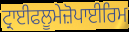
ਟ੍ਰਾਈਫਲੂਮੇਜ਼ੋਪਾਈਰਿਮ